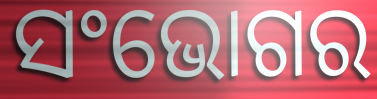
ସଂଭୋଗର